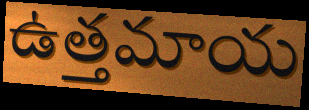
ఉత్తమాయ